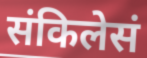
संकिलेसं